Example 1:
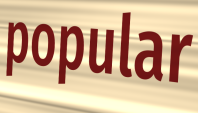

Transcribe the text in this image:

popular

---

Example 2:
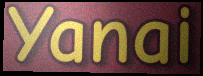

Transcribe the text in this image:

Yanai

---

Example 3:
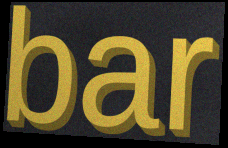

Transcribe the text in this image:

bar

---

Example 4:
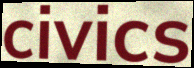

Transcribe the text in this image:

civics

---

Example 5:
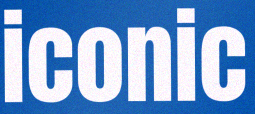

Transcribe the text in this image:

iconic